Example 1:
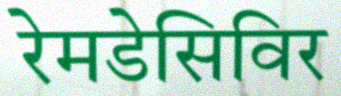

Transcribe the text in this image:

रेमडेसिविर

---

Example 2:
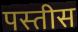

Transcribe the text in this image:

पस्तीस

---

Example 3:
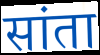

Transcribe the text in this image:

सांता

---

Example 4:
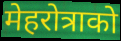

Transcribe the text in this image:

मेहरोत्राको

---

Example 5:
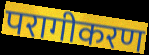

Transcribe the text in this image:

परागीकरण